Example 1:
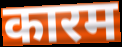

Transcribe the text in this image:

कारम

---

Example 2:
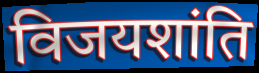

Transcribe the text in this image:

विजयशांति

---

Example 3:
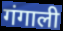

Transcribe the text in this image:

गंगाली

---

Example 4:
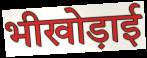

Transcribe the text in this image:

भीखोड़ाई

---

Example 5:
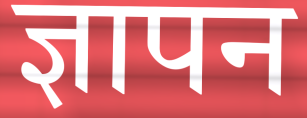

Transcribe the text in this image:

ज्ञापन